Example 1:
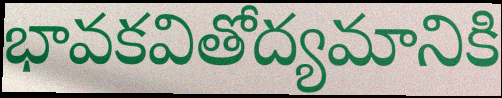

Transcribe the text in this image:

భావకవితోద్యమానికి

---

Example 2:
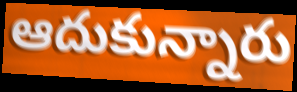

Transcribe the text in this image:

ఆదుకున్నారు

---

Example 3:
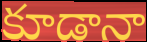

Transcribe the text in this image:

కూడానా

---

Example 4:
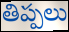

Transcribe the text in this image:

తిప్పలు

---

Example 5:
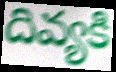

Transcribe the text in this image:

దివ్యకి